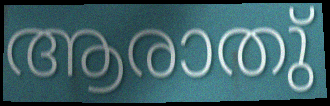
ആരാതു്